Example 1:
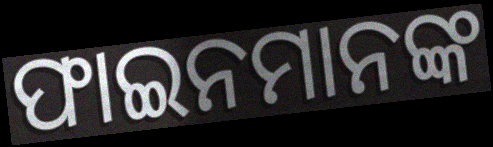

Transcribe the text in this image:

ଫାଇନମାନଙ୍କ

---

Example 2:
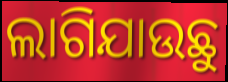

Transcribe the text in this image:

ଲାଗିଯାଉଛୁ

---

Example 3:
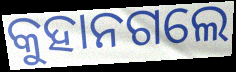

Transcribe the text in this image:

କୁହାନଗଲେ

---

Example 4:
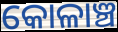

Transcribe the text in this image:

କୋଳାଞ୍ଚ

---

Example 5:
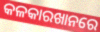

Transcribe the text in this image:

କଳକାରଖାନରେ